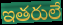
ఇతరులే